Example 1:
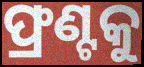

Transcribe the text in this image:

ଫ୍ରଣ୍ଟକୁ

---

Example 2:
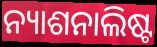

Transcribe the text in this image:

ନ୍ୟାଶନାଲିଷ୍ଟ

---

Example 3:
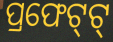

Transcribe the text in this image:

ପ୍ରଫେଟ୍‌ଟ୍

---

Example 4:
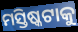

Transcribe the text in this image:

ମସ୍ତିଷ୍କଟାକୁ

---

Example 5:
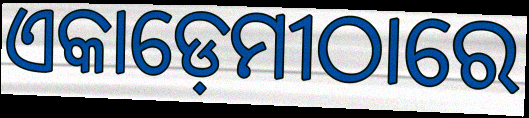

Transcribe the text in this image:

ଏକାଡ଼େମୀଠାରେ